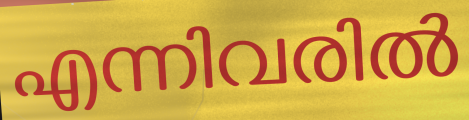
എന്നിവരിൽ